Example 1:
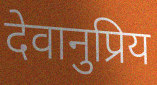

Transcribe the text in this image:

देवानुप्रिय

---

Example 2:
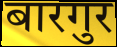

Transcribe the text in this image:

बारगुर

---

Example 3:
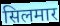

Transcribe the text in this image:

सिलमार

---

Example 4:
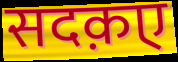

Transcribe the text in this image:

सदक़ए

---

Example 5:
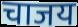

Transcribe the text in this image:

चाजय